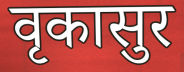
वृकासुर